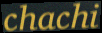
chachi